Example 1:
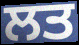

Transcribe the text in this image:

ਲਤ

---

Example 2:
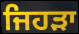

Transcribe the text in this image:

ਜਿਹੜਾ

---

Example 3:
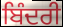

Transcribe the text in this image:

ਬਿੰਦਰੀ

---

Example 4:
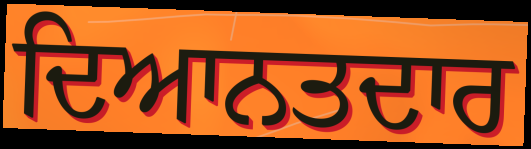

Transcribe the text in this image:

ਦਿਆਨਤਦਾਰ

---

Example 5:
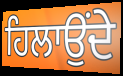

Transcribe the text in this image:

ਹਿਲਾਉਂਦੇ